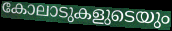
കോലാടുകളുടെയും